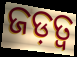
ଜଡ଼ତ୍ଵ